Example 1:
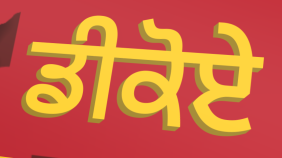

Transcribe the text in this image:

ਡੀਕੋਏ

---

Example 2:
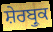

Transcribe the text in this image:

ਸ਼ੇਰਬ੍ਰੁਕ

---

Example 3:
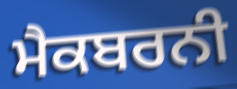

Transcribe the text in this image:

ਮੈਕਬਰਨੀ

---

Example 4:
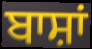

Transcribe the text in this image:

ਬਾਸ਼ਾਂ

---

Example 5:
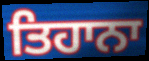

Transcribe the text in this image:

ਤਿਹਾਨਾ